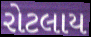
રોટલાય